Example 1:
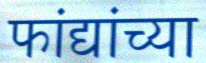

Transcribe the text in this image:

फांद्यांच्या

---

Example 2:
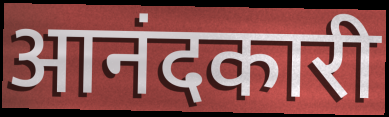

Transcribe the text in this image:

आनंदकारी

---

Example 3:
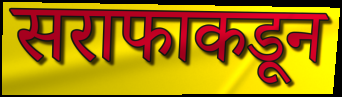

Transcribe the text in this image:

सराफाकडून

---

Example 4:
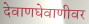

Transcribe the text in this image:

देवाणघेवाणीवर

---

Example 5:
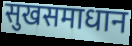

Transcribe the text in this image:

सुखसमाधान